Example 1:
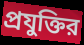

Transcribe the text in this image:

প্রযুক্তির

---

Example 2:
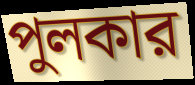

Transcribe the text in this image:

পুলকার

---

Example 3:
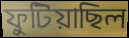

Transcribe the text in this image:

ফুটিয়াছিল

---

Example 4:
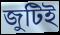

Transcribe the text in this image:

জুটিই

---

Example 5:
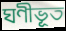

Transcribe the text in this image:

ঘণীভূত